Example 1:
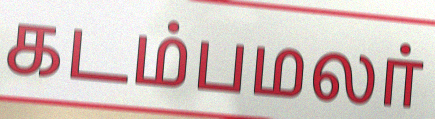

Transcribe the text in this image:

கடம்பமலர்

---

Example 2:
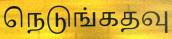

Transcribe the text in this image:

நெடுங்கதவு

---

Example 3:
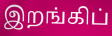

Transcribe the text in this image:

இறங்கிப்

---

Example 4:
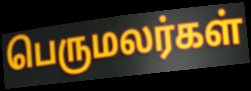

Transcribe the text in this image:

பெருமலர்கள்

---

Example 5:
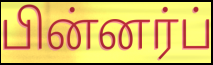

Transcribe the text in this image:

பின்னர்ப்